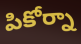
పికోర్నా